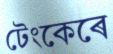
টেংকেৰে